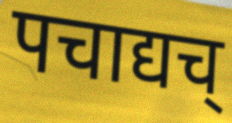
पचाद्यच्